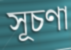
সূচণা